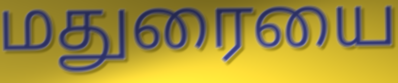
மதுரையை